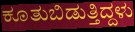
ಕೂತುಬಿಡುತ್ತಿದ್ದಳು